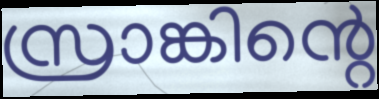
സ്രാങ്കിന്റെ